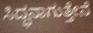
ಸಿದ್ಧನಾಗುತ್ತೇನೆ